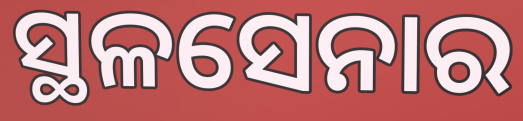
ସ୍ଥଳସେନାର